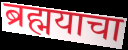
ब्रह्मयाचा